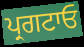
ਪ੍ਰਗਟਾਓ